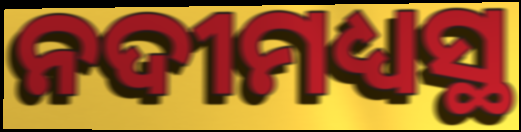
ନଦୀମଧ୍ୟସ୍ଥ